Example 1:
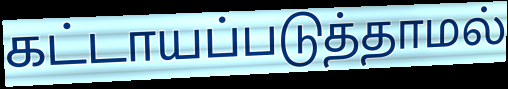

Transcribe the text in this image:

கட்டாயப்படுத்தாமல்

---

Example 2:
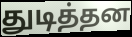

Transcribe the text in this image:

துடித்தன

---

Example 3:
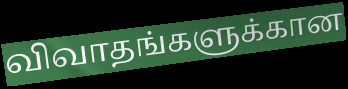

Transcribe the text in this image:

விவாதங்களுக்கான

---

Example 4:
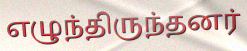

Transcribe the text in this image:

எழுந்திருந்தனர்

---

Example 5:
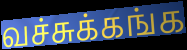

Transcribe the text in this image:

வச்சுக்கங்க